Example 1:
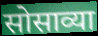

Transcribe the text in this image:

सोसाव्या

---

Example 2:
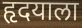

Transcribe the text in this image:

हृदयाला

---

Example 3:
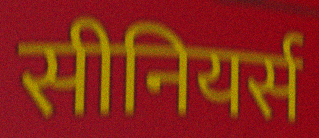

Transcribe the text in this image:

सीनियर्स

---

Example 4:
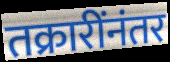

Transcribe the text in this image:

तक्रारींनंतर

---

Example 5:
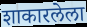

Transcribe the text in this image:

शाकारलेला